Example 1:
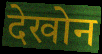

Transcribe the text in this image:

देखोन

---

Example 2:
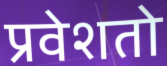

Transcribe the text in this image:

प्रवेशतो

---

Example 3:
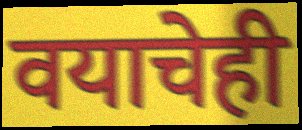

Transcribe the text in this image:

वयाचेही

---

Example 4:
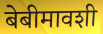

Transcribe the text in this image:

बेबीमावशी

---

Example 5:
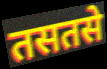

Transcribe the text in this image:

तसतसे